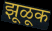
झूळूक